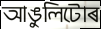
আঙুলিটোৰ